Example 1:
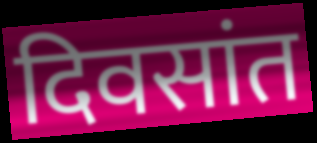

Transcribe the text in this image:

दिवसांत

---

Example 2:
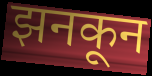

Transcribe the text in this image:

झनकून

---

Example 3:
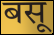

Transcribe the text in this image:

बसू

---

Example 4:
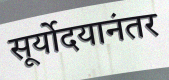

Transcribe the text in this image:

सूर्योदयानंतर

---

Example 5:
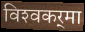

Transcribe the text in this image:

विश्वकर्मा